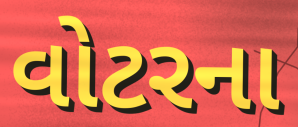
વોટરના